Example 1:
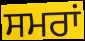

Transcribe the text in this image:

ਸਮਰਾਂ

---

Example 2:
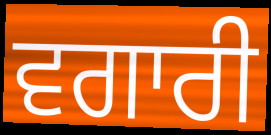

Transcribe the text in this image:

ਵਗਾਰੀ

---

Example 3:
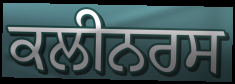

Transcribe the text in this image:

ਕਲੀਨਰਸ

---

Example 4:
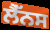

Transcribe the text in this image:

ਲੈੱਨਸ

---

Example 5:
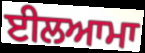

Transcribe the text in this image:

ਈਲਆਮਾ